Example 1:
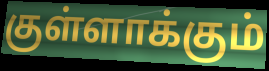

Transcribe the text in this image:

குள்ளாக்கும்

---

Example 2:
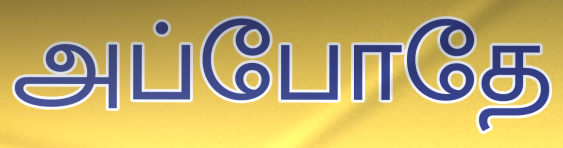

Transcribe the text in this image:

அப்போதே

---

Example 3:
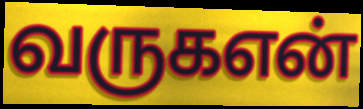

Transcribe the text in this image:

வருகஎன்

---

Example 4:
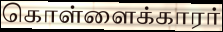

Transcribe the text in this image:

கொள்ளைக்காரர்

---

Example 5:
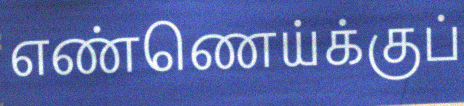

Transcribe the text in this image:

எண்ணெய்க்குப்